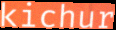
kichur